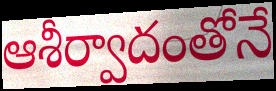
ఆశీర్వాదంతోనే